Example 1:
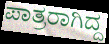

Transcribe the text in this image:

ಪಾತ್ರರಾಗಿದ್ದ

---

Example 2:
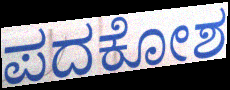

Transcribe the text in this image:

ಪದಕೋಶ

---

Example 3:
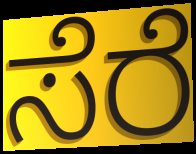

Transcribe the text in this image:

ಸೆರೆ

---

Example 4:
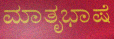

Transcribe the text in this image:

ಮಾತೃಭಾಷೆ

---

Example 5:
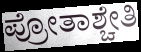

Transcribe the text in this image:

ಪ್ರೋತಾಶ್ಚೇತಿ